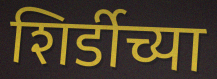
शिर्डीच्या